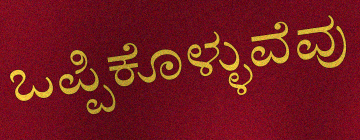
ಒಪ್ಪಿಕೊಳ್ಳುವೆವು